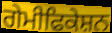
ਗੇਮੀਫਿਕੇਸ਼ਨ